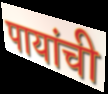
पायांची